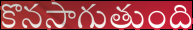
కొనసాగుతుంది